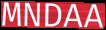
MNDAA